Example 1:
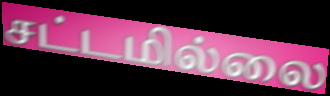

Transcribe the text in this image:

சட்டமில்லை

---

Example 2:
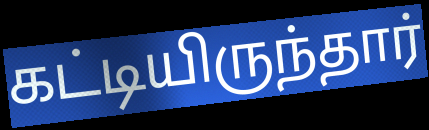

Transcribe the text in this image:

கட்டியிருந்தார்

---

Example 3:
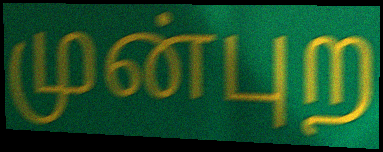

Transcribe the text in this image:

முன்புற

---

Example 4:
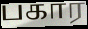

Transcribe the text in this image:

பகார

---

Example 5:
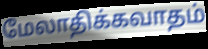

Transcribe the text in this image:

மேலாதிக்கவாதம்